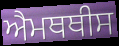
ਐਮਥਥੀਸ